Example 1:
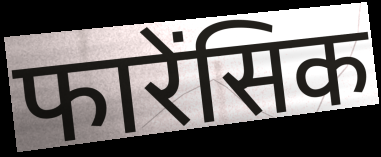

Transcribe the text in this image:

फारेंसिक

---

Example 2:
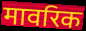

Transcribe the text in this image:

मावरिक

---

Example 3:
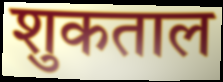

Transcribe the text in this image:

शुकताल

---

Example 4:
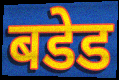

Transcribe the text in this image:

बडेड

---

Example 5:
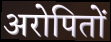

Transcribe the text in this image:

अरोपितों